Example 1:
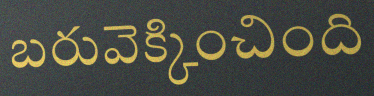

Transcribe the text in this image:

బరువెక్కించింది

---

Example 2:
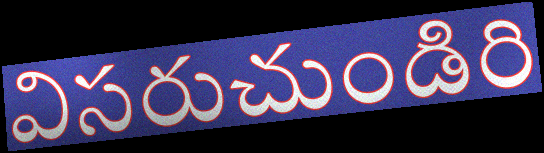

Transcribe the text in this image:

విసరుచుండిరి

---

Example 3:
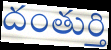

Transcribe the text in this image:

దంతుర్తి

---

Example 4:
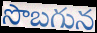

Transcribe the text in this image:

సొబగున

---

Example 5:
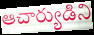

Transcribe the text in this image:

ఆచార్యుడిని